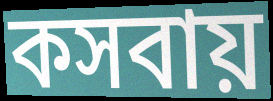
কসবায়